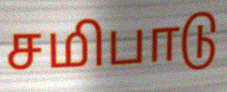
சமிபாடு